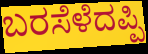
ಬರಸೆಳೆದಪ್ಪಿ